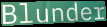
Blunder